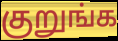
குறுங்க